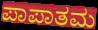
ಪಾಪಾತಮ